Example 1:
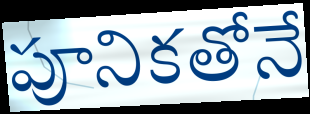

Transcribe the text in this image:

పూనికతోనే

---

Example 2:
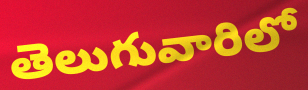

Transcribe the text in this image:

తెలుగువారిలో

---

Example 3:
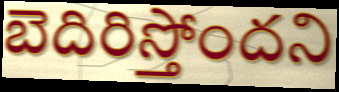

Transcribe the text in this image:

బెదిరిస్తోందని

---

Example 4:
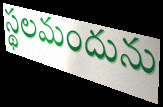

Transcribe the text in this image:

స్థలమందును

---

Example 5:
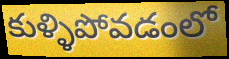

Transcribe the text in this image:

కుళ్ళిపోవడంలో